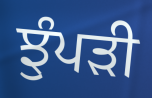
ਝੁੰਪੜੀ